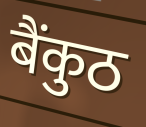
बैंकुठ